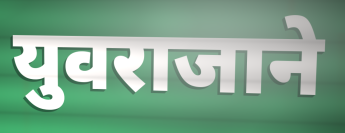
युवराजाने